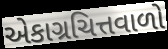
એકાગ્રચિત્તવાળો